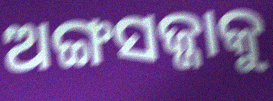
ଅଙ୍ଗସଜ୍ଜାକୁ